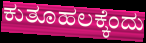
ಕುತೂಹಲಕ್ಕೆಂದು